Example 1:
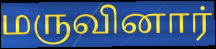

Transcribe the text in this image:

மருவினார்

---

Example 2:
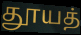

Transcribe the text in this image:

தூயத்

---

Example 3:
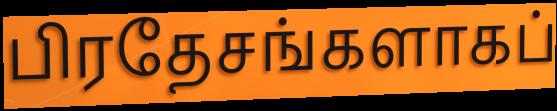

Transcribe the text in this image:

பிரதேசங்களாகப்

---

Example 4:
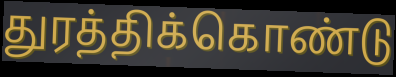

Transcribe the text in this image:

துரத்திக்கொண்டு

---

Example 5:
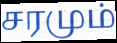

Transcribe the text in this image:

சரமும்